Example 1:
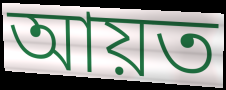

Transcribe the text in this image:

আয়ত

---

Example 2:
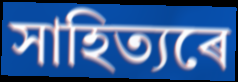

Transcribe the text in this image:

সাহিত্য়ৰে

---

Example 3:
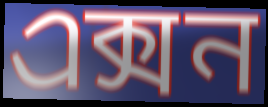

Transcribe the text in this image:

এক্সন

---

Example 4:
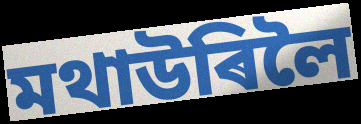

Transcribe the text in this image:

মথাউৰিলৈ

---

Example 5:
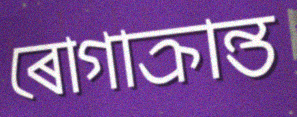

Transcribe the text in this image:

ৰোগাক্ৰান্ত